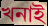
খনাই